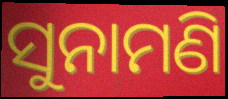
ସୁନାମଣି